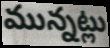
మున్నట్లు